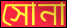
সোনা